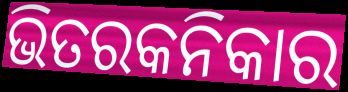
ଭିତରକନିକାର